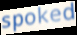
spoked